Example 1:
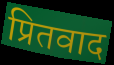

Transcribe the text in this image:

प्रितवाद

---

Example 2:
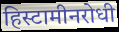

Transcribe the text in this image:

हिस्टामीनरोधी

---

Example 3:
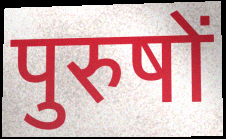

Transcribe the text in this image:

पुरुषों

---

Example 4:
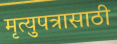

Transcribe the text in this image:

मृत्युपत्रासाठी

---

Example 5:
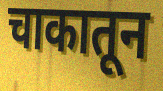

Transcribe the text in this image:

चाकातून